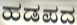
ಹಡಪದ